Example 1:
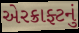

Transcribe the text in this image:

એરક્રાફ્ટનું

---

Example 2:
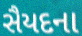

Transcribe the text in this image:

સૈયદના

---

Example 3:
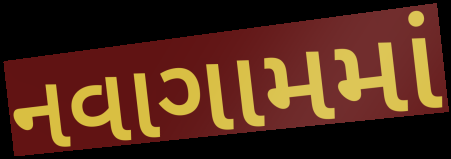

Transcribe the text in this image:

નવાગામમાં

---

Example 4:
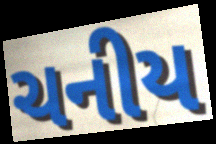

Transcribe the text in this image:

ચનીય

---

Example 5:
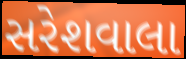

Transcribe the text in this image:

સરેશવાલા